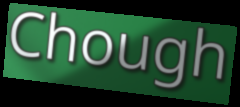
Chough